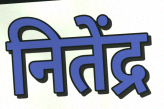
नितेंद्र